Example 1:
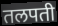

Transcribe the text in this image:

तलपती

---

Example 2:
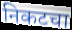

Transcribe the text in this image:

निकटचा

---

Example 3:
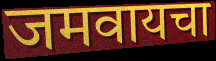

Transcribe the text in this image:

जमवायचा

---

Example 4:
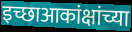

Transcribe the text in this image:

इच्छाआकांक्षांच्या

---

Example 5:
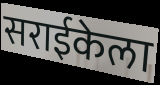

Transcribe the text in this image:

सराईकेला